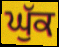
ਘੁੱਕ